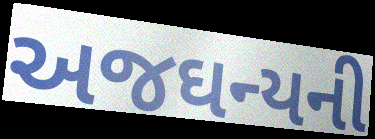
અજઘન્યની